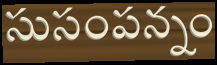
సుసంపన్నం